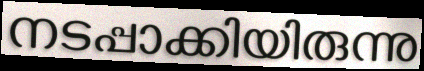
നടപ്പാക്കിയിരുന്നു